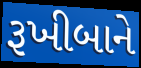
રૂખીબાને